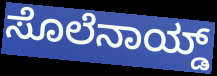
ಸೊಲೆನಾಯ್ಡ್